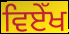
ਵਿਏੱਖ